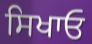
ਸਿਖਾਓ